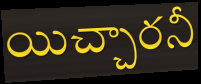
యిచ్చారనీ